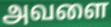
அவளை